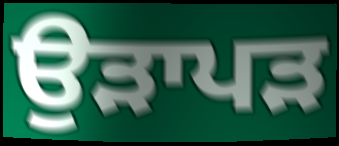
ਉੜਾਪੜ